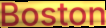
Boston